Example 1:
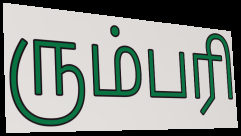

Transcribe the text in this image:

ரும்பரி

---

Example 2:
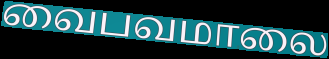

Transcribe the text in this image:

வைபவமாலை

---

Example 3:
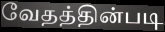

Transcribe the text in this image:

வேதத்தின்படி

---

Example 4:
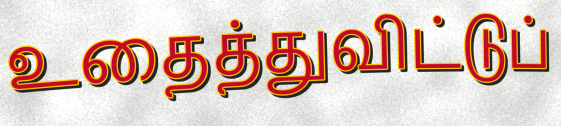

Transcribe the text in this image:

உதைத்துவிட்டுப்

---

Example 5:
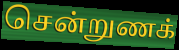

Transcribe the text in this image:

சென்றுணக்